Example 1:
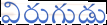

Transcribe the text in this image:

విరుగుడు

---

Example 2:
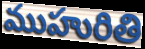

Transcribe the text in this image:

ముహురితి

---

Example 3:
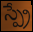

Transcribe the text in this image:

స్ప్రే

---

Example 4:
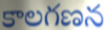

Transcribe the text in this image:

కాలగణన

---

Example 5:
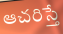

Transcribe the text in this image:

ఆచరిస్తే